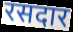
रसदार